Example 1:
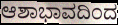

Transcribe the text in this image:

ಆಶಾಭಾವದಿಂದ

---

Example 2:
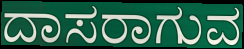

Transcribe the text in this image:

ದಾಸರಾಗುವ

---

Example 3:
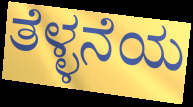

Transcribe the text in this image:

ತೆಳ್ಳನೆಯ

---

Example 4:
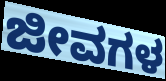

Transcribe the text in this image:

ಜೀವಗಳ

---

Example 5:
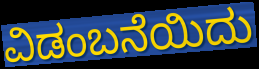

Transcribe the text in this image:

ವಿಡಂಬನೆಯಿದು